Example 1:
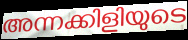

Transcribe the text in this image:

അന്നക്കിളിയുടെ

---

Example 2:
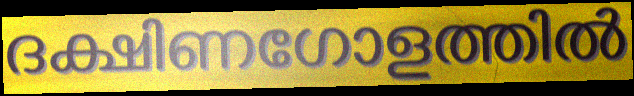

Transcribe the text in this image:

ദക്ഷിണഗോളത്തിൽ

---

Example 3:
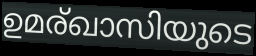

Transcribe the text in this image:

ഉമര്ഖാസിയുടെ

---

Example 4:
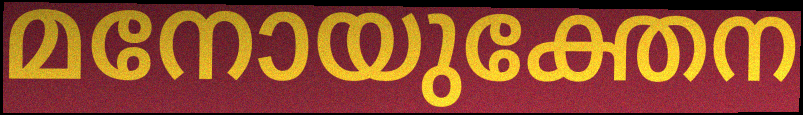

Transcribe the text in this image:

മനോയുക്തേന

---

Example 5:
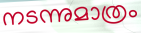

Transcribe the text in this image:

നടന്നുമാത്രം